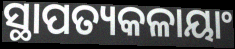
ସ୍ଥାପତ୍ୟକଳାୟାଂ